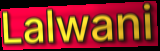
Lalwani